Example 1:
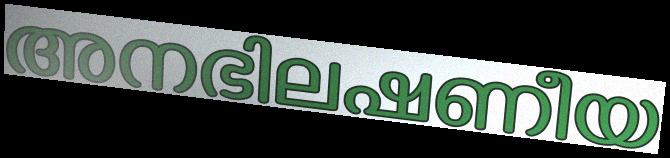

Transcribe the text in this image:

അനഭിലഷണീയ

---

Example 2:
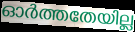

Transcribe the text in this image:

ഓർത്തതേയില്ല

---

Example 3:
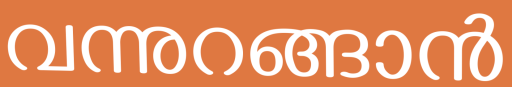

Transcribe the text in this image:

വന്നുറങ്ങാൻ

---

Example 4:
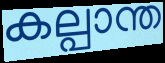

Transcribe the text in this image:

കല്പാന്ത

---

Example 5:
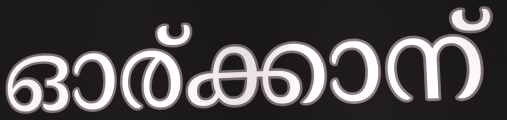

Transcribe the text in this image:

ഓര്ക്കാന്